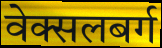
वेक्सलबर्ग